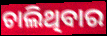
ଚାଲିଥିବାର